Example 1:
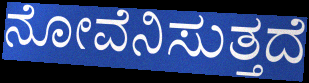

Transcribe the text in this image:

ನೋವೆನಿಸುತ್ತದೆ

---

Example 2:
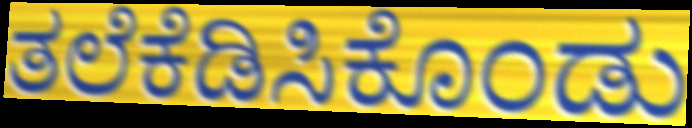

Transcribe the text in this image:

ತಲೆಕೆಡಿಸಿಕೊಂಡು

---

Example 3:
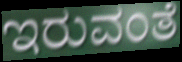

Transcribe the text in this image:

ಇರುವಂತೆ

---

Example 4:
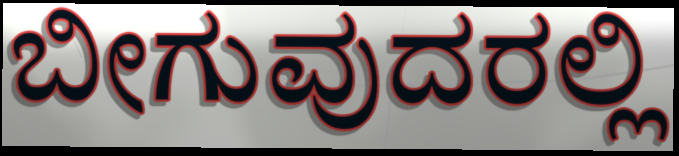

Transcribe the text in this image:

ಬೀಗುವುದರಲ್ಲಿ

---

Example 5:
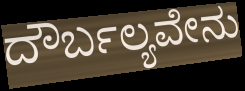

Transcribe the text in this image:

ದೌರ್ಬಲ್ಯವೇನು